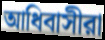
আধিবাসীরা